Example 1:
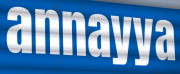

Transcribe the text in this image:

annayya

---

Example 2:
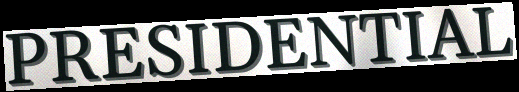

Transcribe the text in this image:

PRESIDENTIAL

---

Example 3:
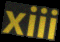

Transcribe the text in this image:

xiii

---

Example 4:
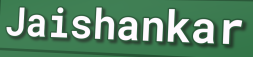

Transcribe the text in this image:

Jaishankar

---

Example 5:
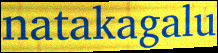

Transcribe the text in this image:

natakagalu